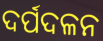
ଦର୍ପଦଳନ